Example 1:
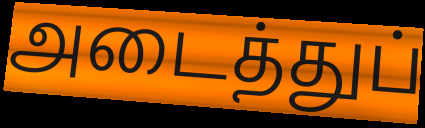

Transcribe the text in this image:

அடைத்துப்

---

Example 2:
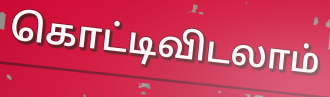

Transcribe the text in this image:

கொட்டிவிடலாம்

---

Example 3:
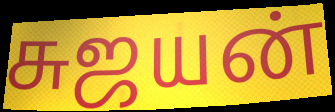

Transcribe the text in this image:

சுஜயன்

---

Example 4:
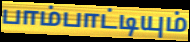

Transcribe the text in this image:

பாம்பாட்டியும்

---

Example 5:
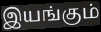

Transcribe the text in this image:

இயங்கும்